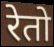
रेतो